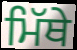
ਮਿੱਥੇ